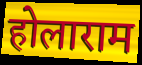
होलाराम